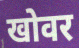
खोवर